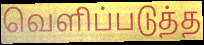
வெளிப்படுத்த